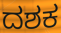
ದಶಕ